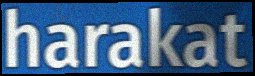
harakat